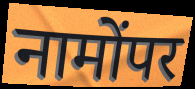
नामोंपर